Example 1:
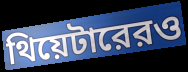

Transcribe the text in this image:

থিয়েটারেরও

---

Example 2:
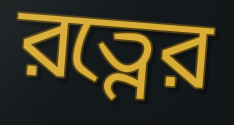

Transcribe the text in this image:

রত্নের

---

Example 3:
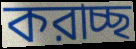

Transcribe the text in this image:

করাচ্ছ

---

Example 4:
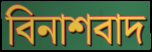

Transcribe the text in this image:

বিনাশবাদ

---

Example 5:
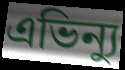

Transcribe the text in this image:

এভিন্যু